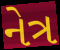
નેત્ર